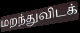
மறந்துவிடக்